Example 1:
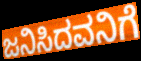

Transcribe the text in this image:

ಜನಿಸಿದವನಿಗೆ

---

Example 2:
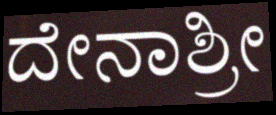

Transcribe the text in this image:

ದೇನಾಶ್ರೀ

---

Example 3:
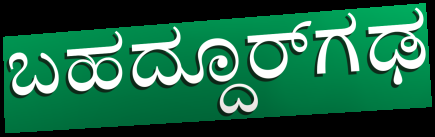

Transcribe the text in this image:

ಬಹದ್ದೂರ್‌ಗಢ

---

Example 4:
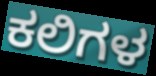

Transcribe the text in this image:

ಕಲಿಗಳ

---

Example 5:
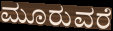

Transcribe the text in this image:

ಮೂರುವರೆ